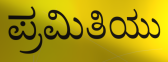
ಪ್ರಮಿತಿಯು